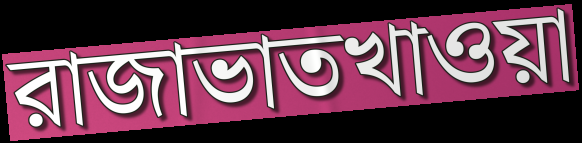
রাজাভাতখাওয়া